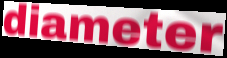
diameter